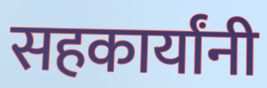
सहकार्यांनी